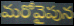
మరోవైపున